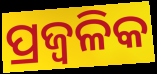
ପ୍ରଜ୍ଵଳିକ